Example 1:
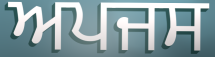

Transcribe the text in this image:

ਅਪਜਸ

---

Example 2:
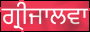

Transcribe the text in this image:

ਗ੍ਰੀਜਾਲਵਾ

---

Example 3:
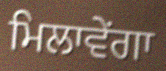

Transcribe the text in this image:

ਮਿਲਾਵੇਂਗਾ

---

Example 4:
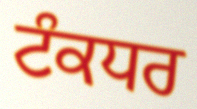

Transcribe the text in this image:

ਟੰਕਧਰ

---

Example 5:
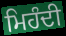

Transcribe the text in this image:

ਮਿਹੰਦੀ